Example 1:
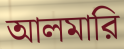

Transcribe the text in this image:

আলমারি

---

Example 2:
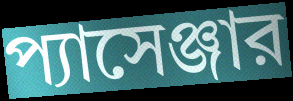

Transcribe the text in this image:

প্যাসেঞ্জার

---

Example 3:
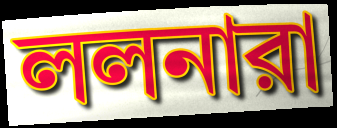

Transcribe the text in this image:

ললনারা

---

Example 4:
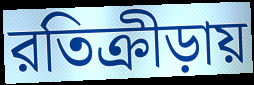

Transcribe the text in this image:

রতিক্রীড়ায়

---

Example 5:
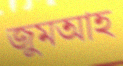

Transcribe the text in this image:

জুমআহ